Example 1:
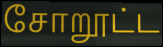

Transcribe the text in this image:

சோறூட்ட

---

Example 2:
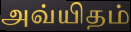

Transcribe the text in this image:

அவ்யிதம்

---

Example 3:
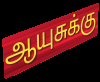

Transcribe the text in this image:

ஆயுசுக்கு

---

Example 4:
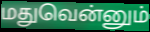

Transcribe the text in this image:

மதுவென்னும்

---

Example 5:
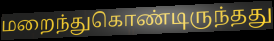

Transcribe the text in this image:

மறைந்துகொண்டிருந்தது